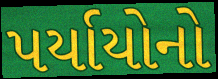
પર્યાયોનો